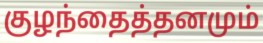
குழந்தைத்தனமும்